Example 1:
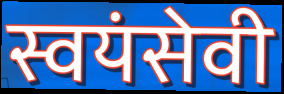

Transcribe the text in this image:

स्वयंसेवी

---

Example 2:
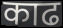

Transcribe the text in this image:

काढ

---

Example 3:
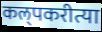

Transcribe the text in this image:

कल्पकरीत्या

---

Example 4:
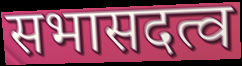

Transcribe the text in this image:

सभासदत्व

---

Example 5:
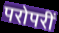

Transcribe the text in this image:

परोपरीं